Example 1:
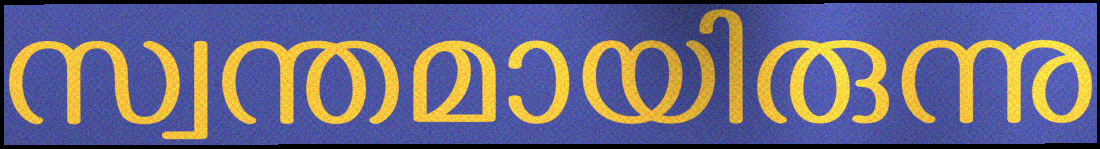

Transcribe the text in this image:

സ്വന്തമായിരുന്നു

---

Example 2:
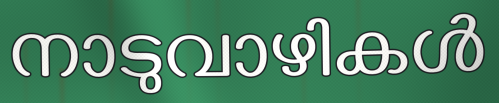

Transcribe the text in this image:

നാടുവാഴികൾ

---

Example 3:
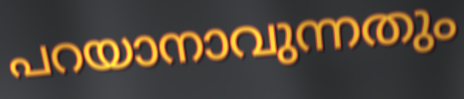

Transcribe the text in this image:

പറയാനാവുന്നതും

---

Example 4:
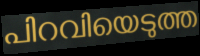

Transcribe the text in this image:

പിറവിയെടുത്ത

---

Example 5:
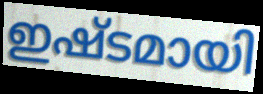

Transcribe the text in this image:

ഇഷ്ടമായി